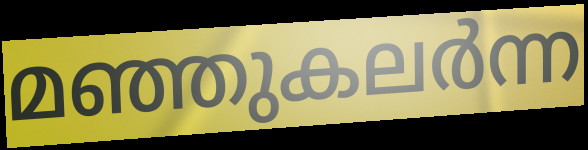
മഞ്ഞുകലർന്ന